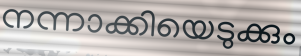
നന്നാക്കിയെടുക്കും